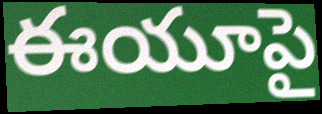
ఈయూపై